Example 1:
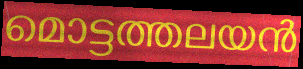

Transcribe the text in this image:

മൊട്ടത്തലയൻ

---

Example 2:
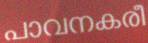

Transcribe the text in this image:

പാവനകരീ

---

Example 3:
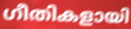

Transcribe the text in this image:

ഗീതികളായി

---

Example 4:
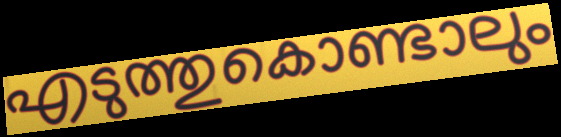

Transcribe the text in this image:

എടുത്തുകൊണ്ടാലും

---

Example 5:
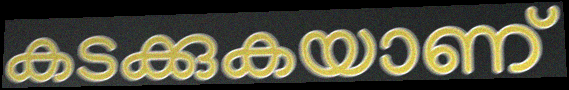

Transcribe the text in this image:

കടക്കുകയാണ്